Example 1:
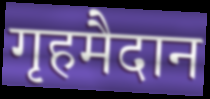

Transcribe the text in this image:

गृहमैदान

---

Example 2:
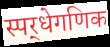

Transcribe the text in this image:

स्पर्धेगणिक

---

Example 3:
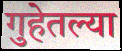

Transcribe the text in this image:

गुहेतल्या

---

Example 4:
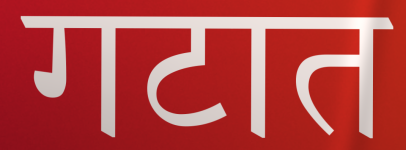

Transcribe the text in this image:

गटात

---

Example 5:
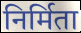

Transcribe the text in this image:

निर्मिता